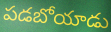
పడబోయాడు